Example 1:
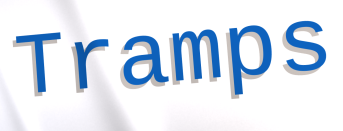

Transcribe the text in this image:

Tramps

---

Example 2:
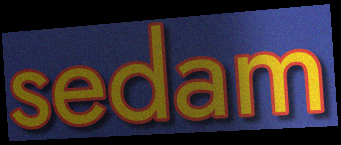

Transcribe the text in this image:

sedam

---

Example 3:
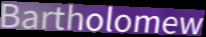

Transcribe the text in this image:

Bartholomew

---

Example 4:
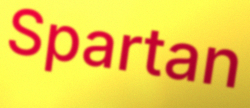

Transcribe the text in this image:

Spartan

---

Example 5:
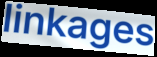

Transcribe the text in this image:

linkages